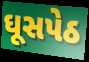
ઘૂસપેઠ